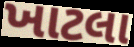
ખાટલા